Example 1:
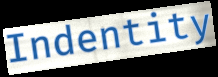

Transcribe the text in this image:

Indentity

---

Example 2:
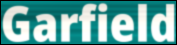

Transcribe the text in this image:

Garfield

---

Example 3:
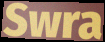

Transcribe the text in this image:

Swra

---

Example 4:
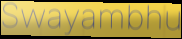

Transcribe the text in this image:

Swayambhu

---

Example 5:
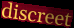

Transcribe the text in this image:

discreet